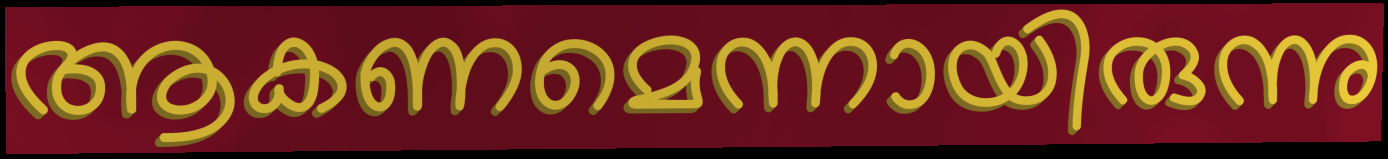
ആകണമെന്നായിരുന്നു